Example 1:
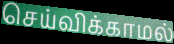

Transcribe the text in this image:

செய்விக்காமல்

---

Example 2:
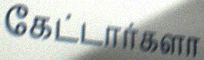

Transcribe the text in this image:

கேட்டார்களா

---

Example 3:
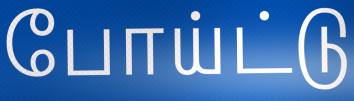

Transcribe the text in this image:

போய்ட்டு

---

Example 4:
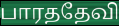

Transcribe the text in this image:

பாரததேவி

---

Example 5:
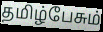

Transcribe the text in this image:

தமிழ்பேசும்